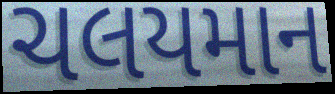
ચલયમાન